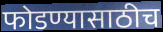
फोडण्यासाठीच